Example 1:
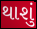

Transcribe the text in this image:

થાશું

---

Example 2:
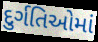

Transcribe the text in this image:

દુર્ગતિઓમાં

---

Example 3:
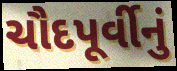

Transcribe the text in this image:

ચૌદપૂર્વીનું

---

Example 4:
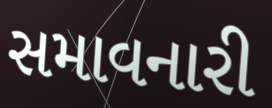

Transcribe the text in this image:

સમાવનારી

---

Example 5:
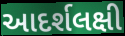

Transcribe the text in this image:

આદર્શલક્ષી